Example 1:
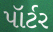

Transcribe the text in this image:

પૉર્ટર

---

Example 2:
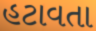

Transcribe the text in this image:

હટાવતા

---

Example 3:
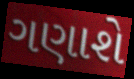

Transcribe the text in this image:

ગણાશે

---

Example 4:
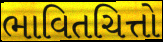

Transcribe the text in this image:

ભાવિતચિત્તો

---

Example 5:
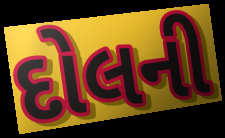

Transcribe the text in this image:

દોલની